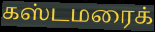
கஸ்டமரைக்